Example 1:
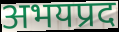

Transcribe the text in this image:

अभयप्रद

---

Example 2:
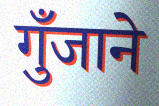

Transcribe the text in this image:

गुँजाने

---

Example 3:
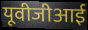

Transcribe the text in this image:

यूवीजीआई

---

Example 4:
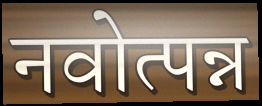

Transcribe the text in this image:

नवोत्पन्न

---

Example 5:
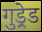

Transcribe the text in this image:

गुड्रेड